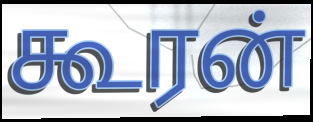
கூரன்